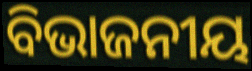
ବିଭାଜନୀୟ